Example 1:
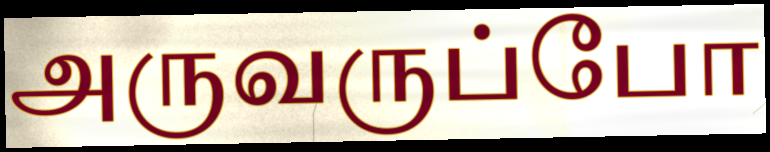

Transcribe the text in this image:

அருவருப்போ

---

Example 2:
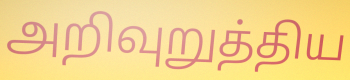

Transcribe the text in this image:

அறிவுறுத்திய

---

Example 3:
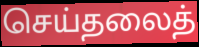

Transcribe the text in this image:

செய்தலைத்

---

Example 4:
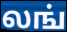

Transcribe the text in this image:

லங்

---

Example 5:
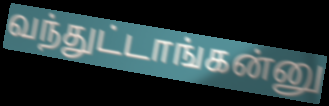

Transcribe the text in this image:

வந்துட்டாங்கன்னு